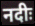
नदीः